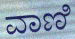
ವಾಣಿ